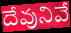
దేవునివే